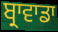
ਬ੍ਰਾਵਾਡਾ